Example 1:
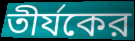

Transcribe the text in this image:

তীর্যকের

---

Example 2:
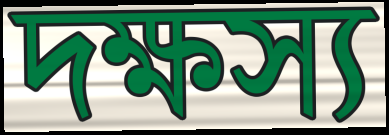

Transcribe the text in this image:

দক্ষস্য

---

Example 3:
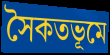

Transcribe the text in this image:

সৈকতভূমে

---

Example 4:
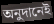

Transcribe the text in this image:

অনুদানেই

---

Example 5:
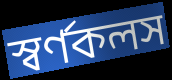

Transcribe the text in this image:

স্বর্ণকলস